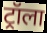
ट्रॉला